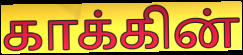
காக்கின்